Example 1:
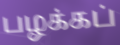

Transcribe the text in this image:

பழக்கப்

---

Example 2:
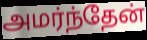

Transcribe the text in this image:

அமர்ந்தேன்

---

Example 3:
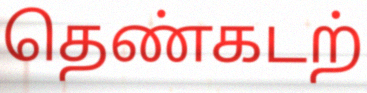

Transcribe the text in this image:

தெண்கடற்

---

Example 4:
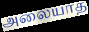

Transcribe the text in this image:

அலையாத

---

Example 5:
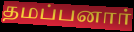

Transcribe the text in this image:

தமப்பனார்